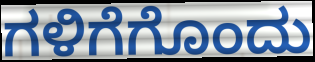
ಗಳಿಗೆಗೊಂದು